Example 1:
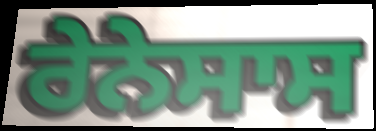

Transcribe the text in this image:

ਰੇਨੇਸਾਸ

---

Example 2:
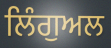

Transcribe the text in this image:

ਲਿੰਗੁਅਲ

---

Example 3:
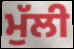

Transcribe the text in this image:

ਮੁੱਲੀ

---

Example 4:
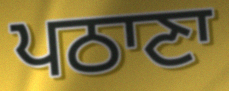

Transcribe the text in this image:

ਪਠਾਣਾ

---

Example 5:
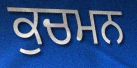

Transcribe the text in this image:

ਕੁਚਮਨ